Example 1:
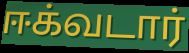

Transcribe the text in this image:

ஈக்வடார்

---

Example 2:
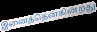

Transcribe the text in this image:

இனைத்தென்கின்றது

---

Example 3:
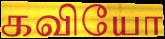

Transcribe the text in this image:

கவியோ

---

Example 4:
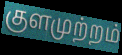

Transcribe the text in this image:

குளமுற்றம்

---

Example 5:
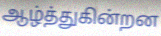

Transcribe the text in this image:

ஆழ்த்துகின்றன